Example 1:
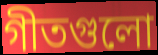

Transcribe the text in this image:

গীতগুলো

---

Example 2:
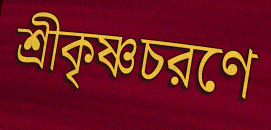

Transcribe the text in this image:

শ্রীকৃষ্ণচরণে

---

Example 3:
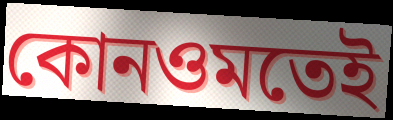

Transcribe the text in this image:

কোনওমতেই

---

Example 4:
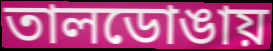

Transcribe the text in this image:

তালডোঙায়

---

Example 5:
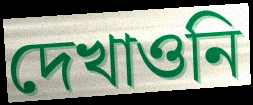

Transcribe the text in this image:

দেখাওনি